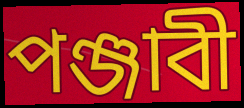
পঞ্জাবী